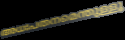
അധഃപതനമെന്തുള്ളൂ